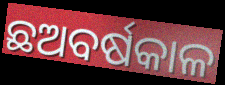
ଛଅବର୍ଷକାଳ